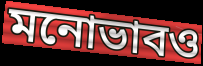
মনোভাবও